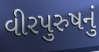
વીરપુરુષનું